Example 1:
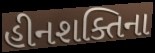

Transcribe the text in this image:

હીનશક્તિના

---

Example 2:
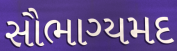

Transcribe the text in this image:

સૌભાગ્યમદ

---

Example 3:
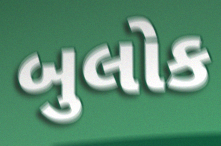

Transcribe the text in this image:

બુલોક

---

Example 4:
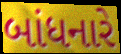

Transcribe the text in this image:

બાંધનારે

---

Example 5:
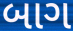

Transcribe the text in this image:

બાગ